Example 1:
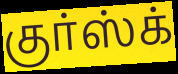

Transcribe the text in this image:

குர்ஸ்க்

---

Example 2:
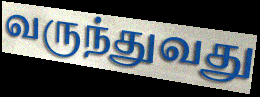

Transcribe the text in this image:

வருந்துவது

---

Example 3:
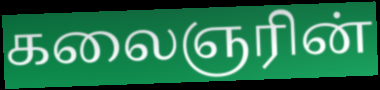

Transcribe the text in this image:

கலைஞரின்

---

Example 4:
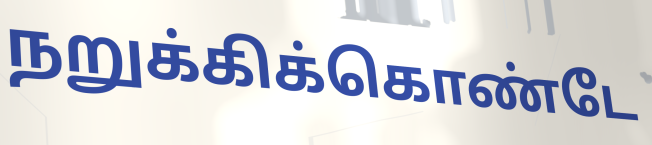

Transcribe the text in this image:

நறுக்கிக்கொண்டே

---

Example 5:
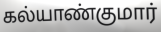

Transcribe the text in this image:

கல்யாண்குமார்